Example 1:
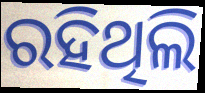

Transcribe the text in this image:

ରହିଥିଲି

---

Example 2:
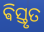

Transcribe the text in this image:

ଵିସ୍ତୃତ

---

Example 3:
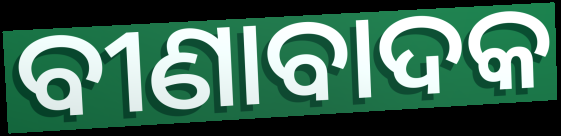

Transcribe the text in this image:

ବୀଣାବାଦକ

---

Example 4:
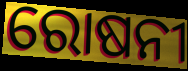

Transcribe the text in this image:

ରୋଷନୀ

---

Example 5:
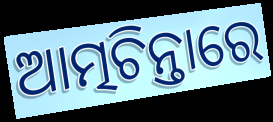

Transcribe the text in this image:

ଆତ୍ମଚିନ୍ତାରେ